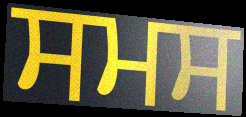
ਸਮਸ